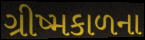
ગ્રીષ્મકાળના